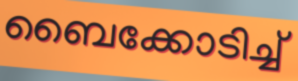
ബൈക്കോടിച്ച്